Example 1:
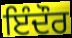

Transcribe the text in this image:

ਇੰਦੌਰ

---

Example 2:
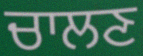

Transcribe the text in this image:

ਚਾਲਣ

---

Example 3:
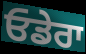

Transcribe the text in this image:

ਓਡੇਰਾ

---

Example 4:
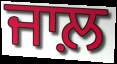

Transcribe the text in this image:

ਜਾਲ਼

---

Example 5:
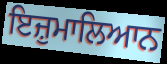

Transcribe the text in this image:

ਇਜ਼ੁਮਾਲਿਆਨ